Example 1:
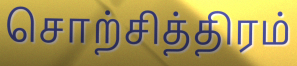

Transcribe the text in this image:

சொற்சித்திரம்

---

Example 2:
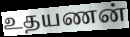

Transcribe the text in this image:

உதயணன்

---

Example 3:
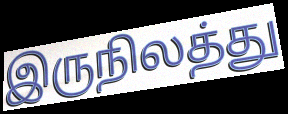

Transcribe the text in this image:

இருநிலத்து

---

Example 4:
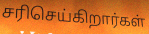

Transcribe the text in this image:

சரிசெய்கிறார்கள்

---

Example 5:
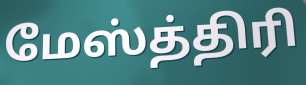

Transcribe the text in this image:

மேஸ்த்திரி